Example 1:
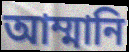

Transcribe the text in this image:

আম্মানি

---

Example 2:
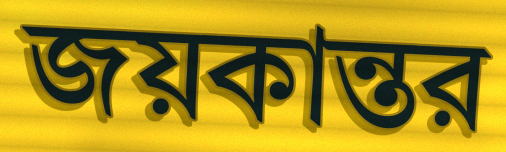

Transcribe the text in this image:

জয়কান্তর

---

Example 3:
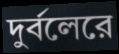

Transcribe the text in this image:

দুর্বলেরে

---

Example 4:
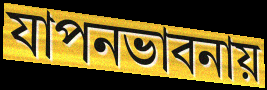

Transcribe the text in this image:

যাপনভাবনায়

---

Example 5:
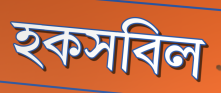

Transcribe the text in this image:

হকসবিল